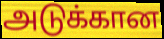
அடுக்கான